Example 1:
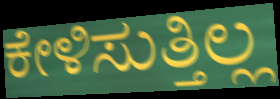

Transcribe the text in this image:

ಕೇಳಿಸುತ್ತಿಲ್ಲ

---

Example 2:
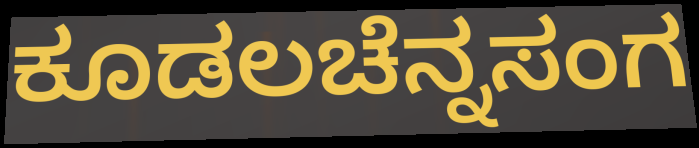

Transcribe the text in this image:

ಕೂಡಲಚೆನ್ನಸಂಗ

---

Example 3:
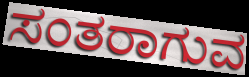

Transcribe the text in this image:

ಸಂತರಾಗುವ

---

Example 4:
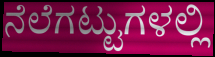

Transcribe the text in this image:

ನೆಲೆಗಟ್ಟುಗಳಲ್ಲಿ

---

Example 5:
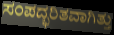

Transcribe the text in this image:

ಸಂಪದ್ಭರಿತವಾಗಿತ್ತು